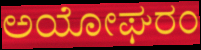
ಅಯೋಘರಂ